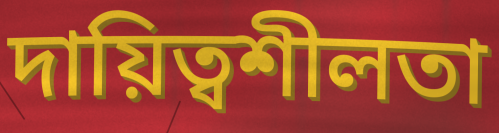
দায়িত্বশীলতা